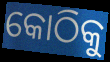
କୋଠିକୁ